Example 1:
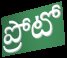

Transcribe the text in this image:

ప్రోటో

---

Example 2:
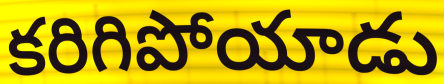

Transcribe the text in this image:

కరిగిపోయాడు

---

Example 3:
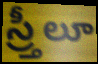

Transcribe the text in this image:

స్ర్తీలూ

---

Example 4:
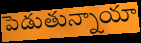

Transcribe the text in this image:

పెడుతున్నాయా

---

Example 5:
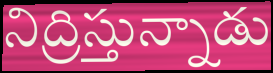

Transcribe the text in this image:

నిద్రిస్తున్నాడు